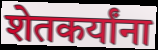
शेतकर्यांना